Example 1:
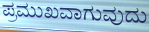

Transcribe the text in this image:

ಪ್ರಮುಖವಾಗುವುದು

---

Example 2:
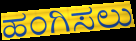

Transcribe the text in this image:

ಹಂಗಿಸಲು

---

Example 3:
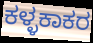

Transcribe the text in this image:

ಕಳ್ಳಕಾಕರ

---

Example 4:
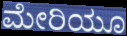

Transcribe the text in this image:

ಮೇರಿಯೂ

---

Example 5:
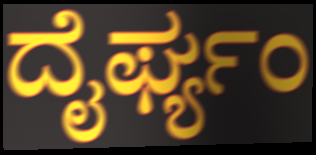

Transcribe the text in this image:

ದೈರ್ಘ್ಯಂ